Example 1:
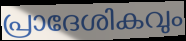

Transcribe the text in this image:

പ്രാദേശികവും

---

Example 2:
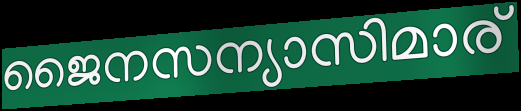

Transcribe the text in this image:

ജൈനസന്യാസിമാര്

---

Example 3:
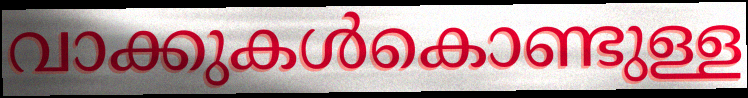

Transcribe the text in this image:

വാക്കുകൾകൊണ്ടുള്ള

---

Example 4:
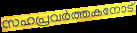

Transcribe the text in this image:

സഹപ്രവർത്തകനോട്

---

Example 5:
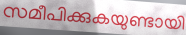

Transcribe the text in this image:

സമീപിക്കുകയുണ്ടായി